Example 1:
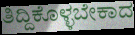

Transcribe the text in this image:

ತಿದ್ದಿಕೊಳ್ಳಬೇಕಾದ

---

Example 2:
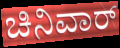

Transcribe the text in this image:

ಚಿನಿವಾರ್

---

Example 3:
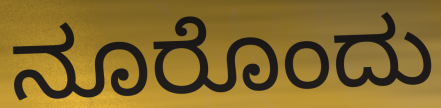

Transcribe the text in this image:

ನೂರೊಂದು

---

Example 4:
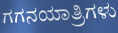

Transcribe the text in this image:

ಗಗನಯಾತ್ರಿಗಳು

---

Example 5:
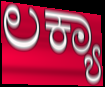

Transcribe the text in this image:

ಲಕ್ಯಾ